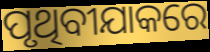
ପୃଥିବୀଯାକରେ